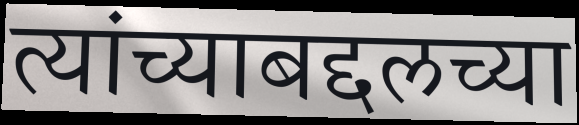
त्यांच्याबद्दलच्या